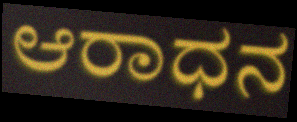
ಆರಾಧನ